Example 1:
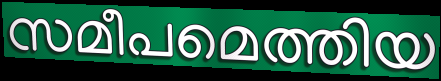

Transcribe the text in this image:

സമീപമെത്തിയ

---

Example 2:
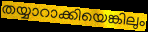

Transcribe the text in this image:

തയ്യാറാക്കിയെങ്കിലും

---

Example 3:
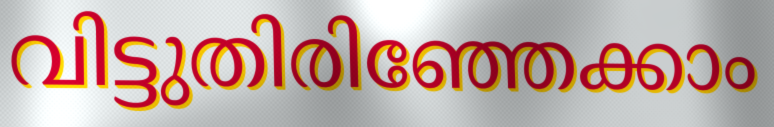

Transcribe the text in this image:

വിട്ടുതിരിഞ്ഞേക്കാം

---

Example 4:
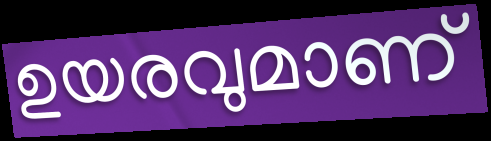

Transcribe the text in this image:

ഉയരവുമാണ്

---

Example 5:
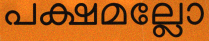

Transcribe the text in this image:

പക്ഷമല്ലോ